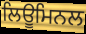
ਲਿਊਮਿਨਲ